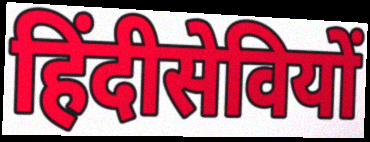
हिंदीसेवियों